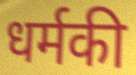
धर्मकी